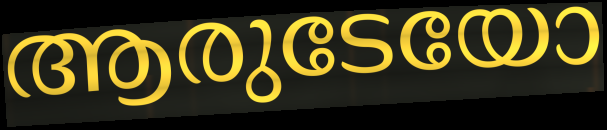
ആരുടേയോ